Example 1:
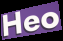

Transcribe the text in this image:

Heo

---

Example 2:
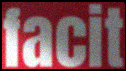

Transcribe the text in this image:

facit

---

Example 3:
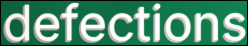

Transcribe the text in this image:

defections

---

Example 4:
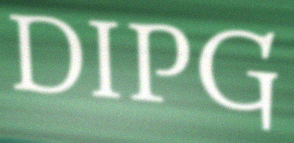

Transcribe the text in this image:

DIPG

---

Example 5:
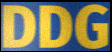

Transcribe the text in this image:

DDG